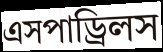
এসপাড্রিলস